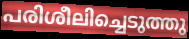
പരിശീലിച്ചെടുത്തു